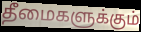
தீமைகளுக்கும்